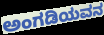
ಅಂಗಡಿಯವನ